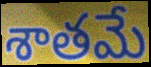
శాతమే